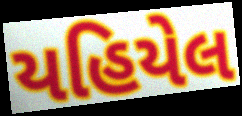
યહિયેલ